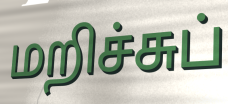
மறிச்சுப்